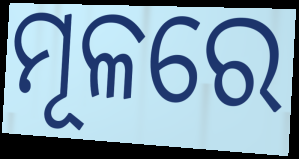
ମୂଳରେ